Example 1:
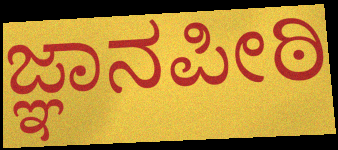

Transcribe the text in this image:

ಜ್ಞಾನಪೀಠಿ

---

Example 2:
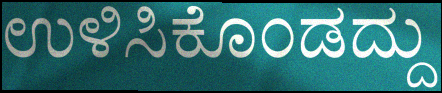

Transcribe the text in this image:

ಉಳಿಸಿಕೊಂಡದ್ದು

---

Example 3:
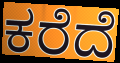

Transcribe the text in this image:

ಕರೆದೆ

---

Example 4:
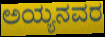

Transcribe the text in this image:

ಅಯ್ಯನವರ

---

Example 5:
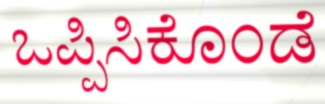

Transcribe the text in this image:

ಒಪ್ಪಿಸಿಕೊಂಡೆ